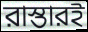
রাস্তারই